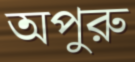
অপুরু